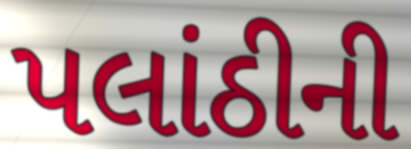
પલાંઠીની